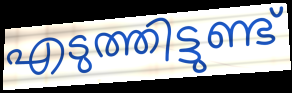
എടുത്തിട്ടുണ്ട്